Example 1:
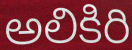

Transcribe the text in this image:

అలికిరి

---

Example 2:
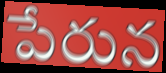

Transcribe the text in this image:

పేరున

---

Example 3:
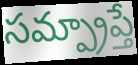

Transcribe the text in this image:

సమ్ప్రాప్తే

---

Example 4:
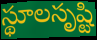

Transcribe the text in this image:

స్థూలసృష్టి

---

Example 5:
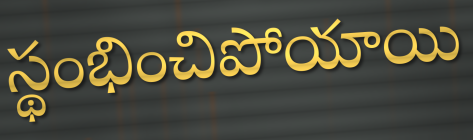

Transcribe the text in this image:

స్థంభించిపోయాయి